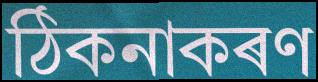
ঠিকনাকৰণ